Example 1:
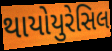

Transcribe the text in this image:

થાયોયુરેસિલ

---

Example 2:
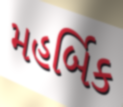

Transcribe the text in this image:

મહર્બિક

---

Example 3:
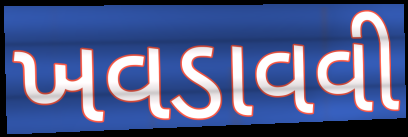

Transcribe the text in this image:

ખવડાવવી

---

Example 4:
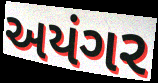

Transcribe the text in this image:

અયંગર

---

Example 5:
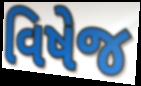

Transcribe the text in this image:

વિષેજ